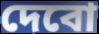
দেবো